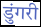
डुंगरी